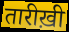
तारीख़ी